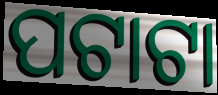
ପଟାଟା